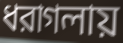
ধরাগলায়